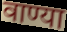
वाण्या